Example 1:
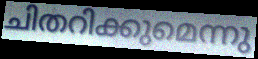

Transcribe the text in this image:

ചിതറിക്കുമെന്നു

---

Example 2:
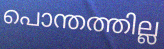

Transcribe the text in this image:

പൊന്തത്തില്ല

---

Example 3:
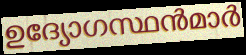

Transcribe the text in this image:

ഉദ്യോഗസ്ഥൻമാർ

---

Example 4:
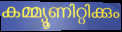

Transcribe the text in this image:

കമ്മ്യൂണിറ്റിക്കും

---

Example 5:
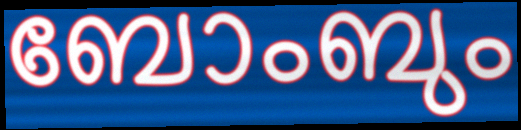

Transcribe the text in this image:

ബോംബും